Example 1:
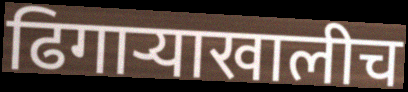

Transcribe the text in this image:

ढिगाऱ्याखालीच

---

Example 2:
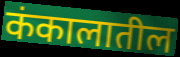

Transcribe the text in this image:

कंकालातील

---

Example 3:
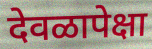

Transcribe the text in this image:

देवळापेक्षा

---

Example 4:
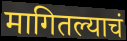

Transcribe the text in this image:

मागितल्याचं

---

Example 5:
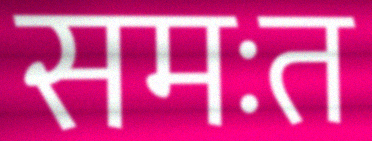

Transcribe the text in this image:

समःत